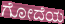
ಗೋದೆಯ